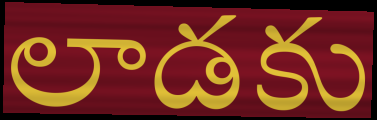
లాడకు